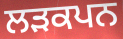
ਲੜਕਪਨ